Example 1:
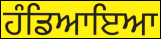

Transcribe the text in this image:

ਹੰਡਿਆਇਆ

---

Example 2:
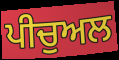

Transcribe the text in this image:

ਪੀਚੁਅਲ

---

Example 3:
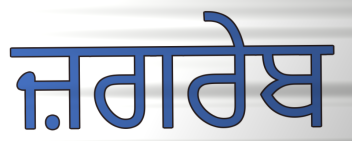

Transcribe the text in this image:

ਜ਼ਗਰੇਬ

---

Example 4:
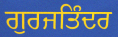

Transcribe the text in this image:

ਗੁਰਜਤਿੰਦਰ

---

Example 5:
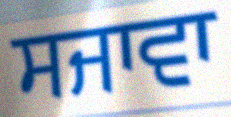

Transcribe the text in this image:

ਸਜਾਵਾ